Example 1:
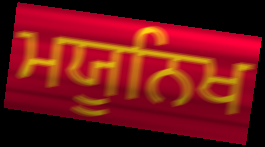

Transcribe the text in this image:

ਮਯੂਨਿਖ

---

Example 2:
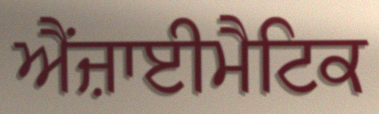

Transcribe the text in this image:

ਐਂਜ਼ਾਈਮੈਟਿਕ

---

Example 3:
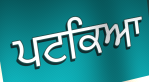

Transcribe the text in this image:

ਪਟਕਿਆ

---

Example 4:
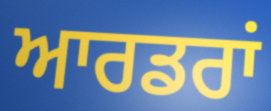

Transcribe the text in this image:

ਆਰਡਰਾਂ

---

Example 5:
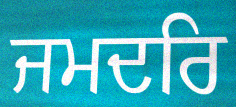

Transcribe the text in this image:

ਜਮਦਰਿ